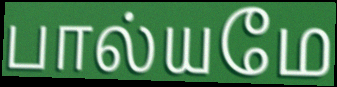
பால்யமே